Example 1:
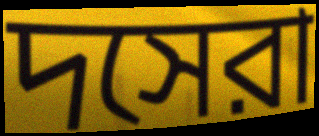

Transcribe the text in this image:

দসেরা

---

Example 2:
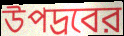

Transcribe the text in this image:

উপদ্রবের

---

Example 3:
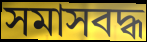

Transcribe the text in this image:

সমাসবদ্ধ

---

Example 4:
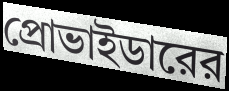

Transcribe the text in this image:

প্রোভাইডারের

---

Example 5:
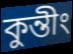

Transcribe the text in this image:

কুন্তীং